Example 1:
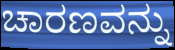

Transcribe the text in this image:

ಚಾರಣವನ್ನು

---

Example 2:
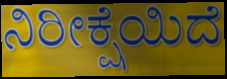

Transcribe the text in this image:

ನಿರೀಕ್ಷೆಯಿದೆ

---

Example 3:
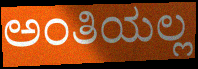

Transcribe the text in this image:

ಅಂತಿಯಲ್ಲ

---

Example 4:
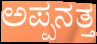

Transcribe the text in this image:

ಅಪ್ಪನತ್ತ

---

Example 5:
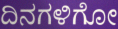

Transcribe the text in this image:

ದಿನಗಳಿಗೋ